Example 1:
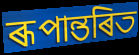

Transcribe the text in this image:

ৰূপান্তৰিত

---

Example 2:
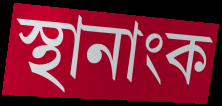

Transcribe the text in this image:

স্থানাংক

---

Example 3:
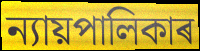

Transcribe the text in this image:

ন্যায়পালিকাৰ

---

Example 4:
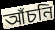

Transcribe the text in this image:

আঁচনি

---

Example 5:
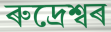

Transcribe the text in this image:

ৰুদ্ৰেশ্বৰ